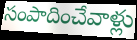
సంపాదించేవాళ్లు